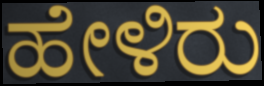
ಹೇಳಿರು